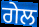
ਗੇਲ